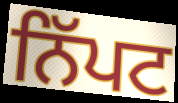
ਨਿੱਪਟ